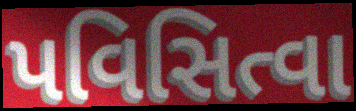
પવિસિત્વા